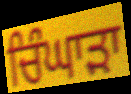
ਚਿੰਘਾੜਾ